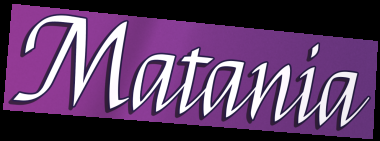
Matania